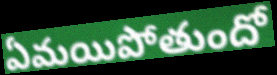
ఏమయిపోతుందో